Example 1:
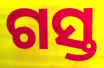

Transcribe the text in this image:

ଗସ୍ତ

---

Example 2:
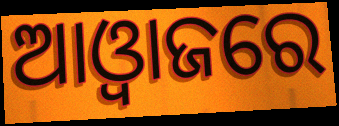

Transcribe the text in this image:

ଆଓ୍ୱାଜରେ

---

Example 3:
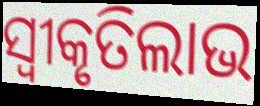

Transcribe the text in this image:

ସ୍ଵୀକୃତିଲାଭ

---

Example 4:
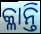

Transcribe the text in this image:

କ୍ଳାନ୍ତି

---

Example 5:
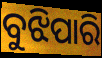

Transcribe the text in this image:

ବୁଝିପାରି